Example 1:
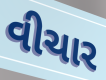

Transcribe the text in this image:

વીચાર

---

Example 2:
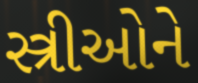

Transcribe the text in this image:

સ્ત્રીઓને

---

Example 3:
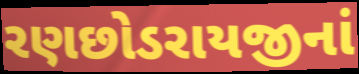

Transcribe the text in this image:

રણછોડરાયજીનાં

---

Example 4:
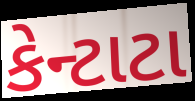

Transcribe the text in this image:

કેન્ટાટા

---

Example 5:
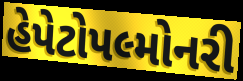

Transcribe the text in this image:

હેપેટોપલ્મોનરી